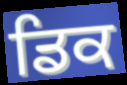
ਡਿਕ